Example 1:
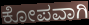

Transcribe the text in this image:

ಕೋಪವಾಗಿ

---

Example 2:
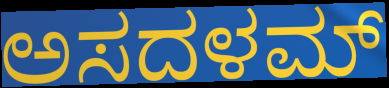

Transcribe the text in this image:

ಅಸದಳಮ್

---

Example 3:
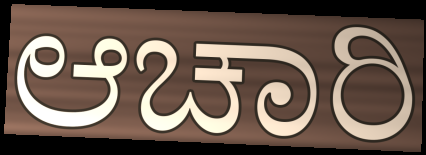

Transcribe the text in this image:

ಆಚಾರಿ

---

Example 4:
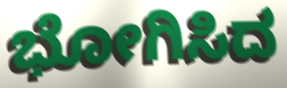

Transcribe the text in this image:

ಭೋಗಿಸಿದ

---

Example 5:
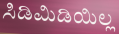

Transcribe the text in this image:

ಸಿಡಿಮಿಡಿಯಿಲ್ಲ